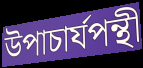
উপাচার্যপন্থী